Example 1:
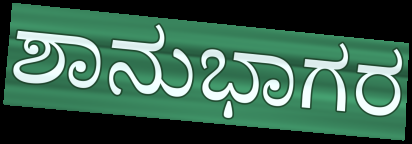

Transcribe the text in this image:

ಶಾನುಭಾಗರ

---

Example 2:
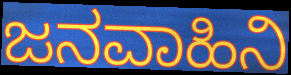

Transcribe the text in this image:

ಜನವಾಹಿನಿ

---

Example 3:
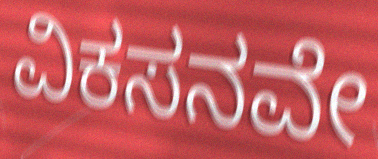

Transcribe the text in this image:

ವಿಕಸನವೇ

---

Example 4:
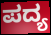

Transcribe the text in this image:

ಪದ್ಯ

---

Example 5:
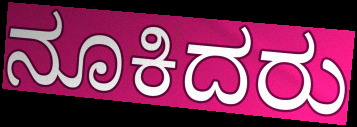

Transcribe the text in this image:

ನೂಕಿದರು